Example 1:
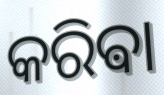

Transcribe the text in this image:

କରିଵା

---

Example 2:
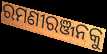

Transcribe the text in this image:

ରମଣୀରଞ୍ଜନକୁ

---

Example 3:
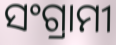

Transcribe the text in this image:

ସଂଗ୍ରାମୀ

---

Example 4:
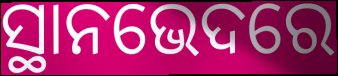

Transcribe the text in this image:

ସ୍ଥାନଭେଦରେ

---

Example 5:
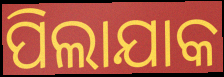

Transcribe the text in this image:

ପିଲାଯାକ